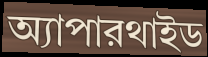
অ্যাপারথাইড